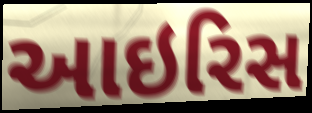
આઇરિસ